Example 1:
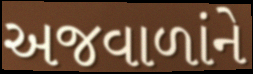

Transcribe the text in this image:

અજવાળાંને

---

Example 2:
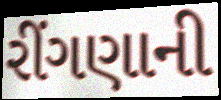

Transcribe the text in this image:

રીંગણાની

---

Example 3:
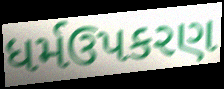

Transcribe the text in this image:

ધર્મઉપકરણ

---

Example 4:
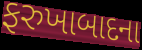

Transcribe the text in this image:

ફરુખાબાદના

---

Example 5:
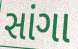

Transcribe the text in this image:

સાંગા